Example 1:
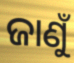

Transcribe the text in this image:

ଜାଣୁଁ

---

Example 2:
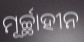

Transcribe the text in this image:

ମୂର୍ଚ୍ଛାହୀନ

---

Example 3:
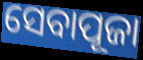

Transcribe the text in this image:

ସେବାପୂଜା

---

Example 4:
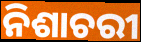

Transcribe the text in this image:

ନିଶାଚରୀ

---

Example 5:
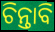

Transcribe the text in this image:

ଚିନ୍ତାବି